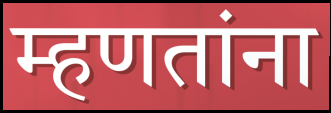
म्हणतांना